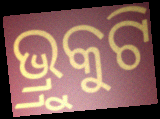
ଭ୍ର୍ରୁକୁଟି